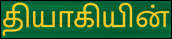
தியாகியின்